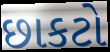
છાકટો